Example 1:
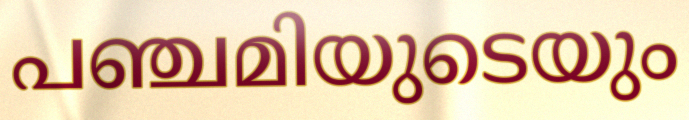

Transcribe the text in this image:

പഞ്ചമിയുടെയും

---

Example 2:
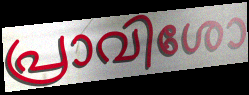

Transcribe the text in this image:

പ്രാവിശോ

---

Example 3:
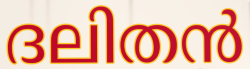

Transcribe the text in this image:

ദലിതൻ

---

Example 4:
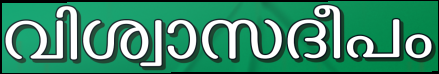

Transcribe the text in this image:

വിശ്വാസദീപം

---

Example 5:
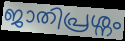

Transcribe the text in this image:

ജാതിപ്രശ്നം